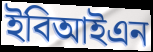
ইবিআইএন